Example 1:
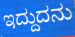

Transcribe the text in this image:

ಇದ್ದುದನು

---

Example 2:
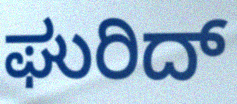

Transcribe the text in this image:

ಘುರಿದ್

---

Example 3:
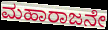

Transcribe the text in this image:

ಮಹಾರಾಜನೇ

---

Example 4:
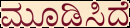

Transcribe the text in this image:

ಮೂಡಿಸಿದೆ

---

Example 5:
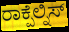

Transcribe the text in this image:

ರಾಕ್ಪೆಲ್ನಿಸ್